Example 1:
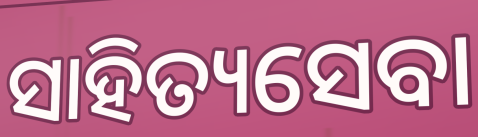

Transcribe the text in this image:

ସାହିତ୍ୟସେବା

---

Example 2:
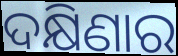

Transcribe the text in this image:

ଦକ୍ଷିଣାର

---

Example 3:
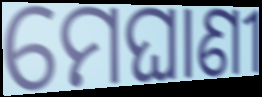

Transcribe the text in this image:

ମେଘାଣୀ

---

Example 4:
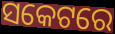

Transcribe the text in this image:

ସକେଟରେ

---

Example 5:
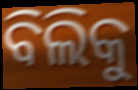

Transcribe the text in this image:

ବିଲିକୁ